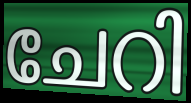
ചേറി